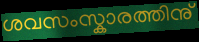
ശവസംസ്കാരത്തിനു്